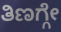
ತಿಣಗ್ಗೇ